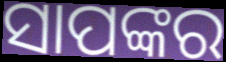
ସାପଙ୍କର